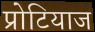
प्रोटियाज